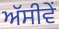
ਅੱਸੀਵੇਂ